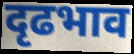
दृढभाव